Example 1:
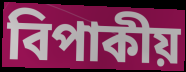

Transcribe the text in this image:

বিপাকীয়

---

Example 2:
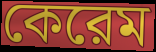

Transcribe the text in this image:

কেরেম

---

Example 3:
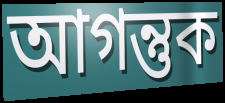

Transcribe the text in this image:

আগন্তুক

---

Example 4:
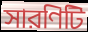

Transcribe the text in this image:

সারণিটি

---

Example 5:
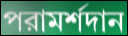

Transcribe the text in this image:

পরামর্শদান